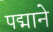
पद्माने